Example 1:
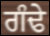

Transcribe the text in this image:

ਗੰਢੇ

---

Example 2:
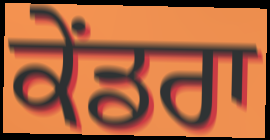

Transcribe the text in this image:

ਕੇਂਡਰਾ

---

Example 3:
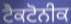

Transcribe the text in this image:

ਟੈਕਟੋਨੀਕ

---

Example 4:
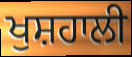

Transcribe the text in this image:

ਖੁਸ਼ਹਾਲੀ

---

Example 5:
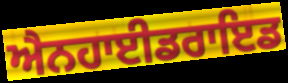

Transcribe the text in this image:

ਐਨਹਾਈਡਰਾਇਡ